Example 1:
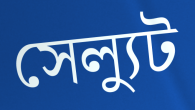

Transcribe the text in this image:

সেল্যুট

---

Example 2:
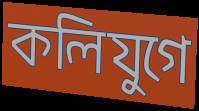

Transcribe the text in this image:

কলিযুগে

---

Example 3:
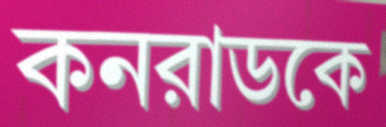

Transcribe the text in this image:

কনরাডকে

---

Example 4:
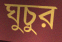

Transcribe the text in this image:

ঘুচুর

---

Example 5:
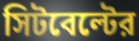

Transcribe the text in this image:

সিটবেল্টের